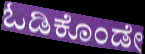
ಓಡಿಕೊಂಡೇ